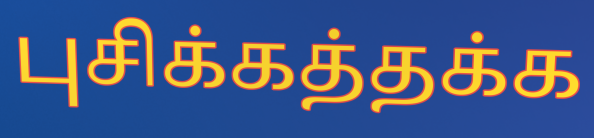
புசிக்கத்தக்க